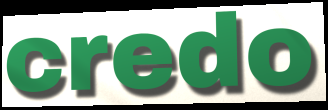
credo